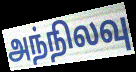
அந்நிலவு